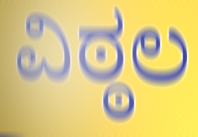
ವಿಠ್ಠಲ